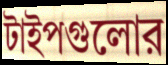
টাইপগুলোর